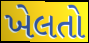
ખેલતો